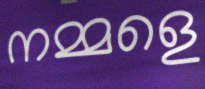
നമ്മളെ